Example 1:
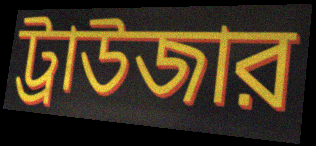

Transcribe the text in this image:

ট্রাউজার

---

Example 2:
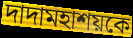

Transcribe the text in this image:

দাদামহাশয়কে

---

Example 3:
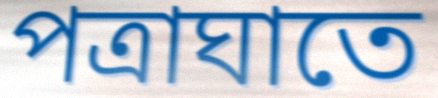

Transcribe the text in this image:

পত্রাঘাতে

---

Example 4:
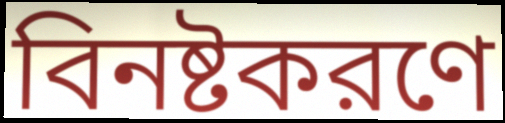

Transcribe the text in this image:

বিনষ্টকরণে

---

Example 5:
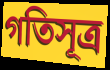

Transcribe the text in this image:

গতিসূত্র